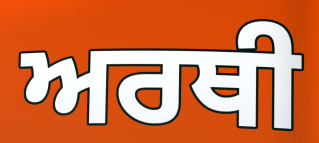
ਅਰਥੀ